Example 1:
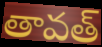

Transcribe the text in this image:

తావత్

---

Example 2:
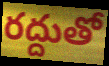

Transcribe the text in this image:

రద్దుతో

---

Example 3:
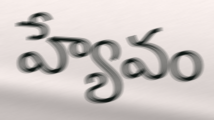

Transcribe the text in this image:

హ్యేవం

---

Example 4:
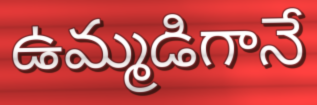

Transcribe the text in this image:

ఉమ్మడిగానే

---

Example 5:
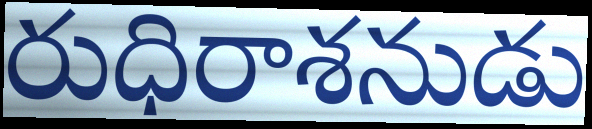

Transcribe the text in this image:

రుధిరాశనుడు